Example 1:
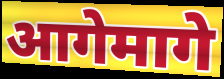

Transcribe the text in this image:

आगेमागे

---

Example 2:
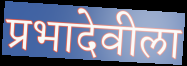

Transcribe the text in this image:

प्रभादेवीला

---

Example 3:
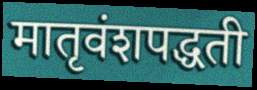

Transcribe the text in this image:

मातृवंशपद्धती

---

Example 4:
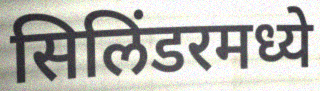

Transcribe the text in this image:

सिलिंडरमध्ये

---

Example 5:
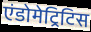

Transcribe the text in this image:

एंडोमेट्रिटिस